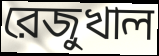
রেজুখাল